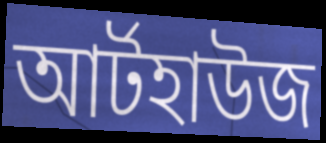
আর্টহাউজ